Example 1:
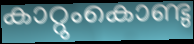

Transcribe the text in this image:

കാറ്റുംകൊണ്ടു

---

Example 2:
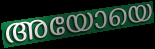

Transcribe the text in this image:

അയോയെ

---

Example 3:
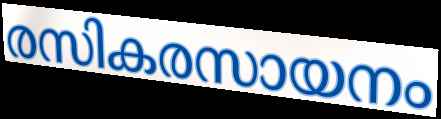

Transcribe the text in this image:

രസികരസായനം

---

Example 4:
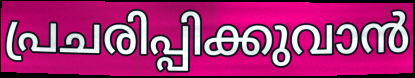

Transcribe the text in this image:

പ്രചരിപ്പിക്കുവാൻ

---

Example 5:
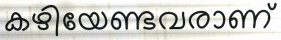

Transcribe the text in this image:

കഴിയേണ്ടവരാണ്